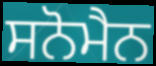
ਸਨੋਮੈਨ